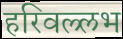
हरिवल्लभ